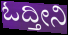
ಓದ್ತೀನಿ